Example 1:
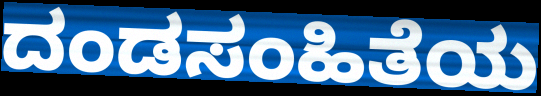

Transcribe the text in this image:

ದಂಡಸಂಹಿತೆಯ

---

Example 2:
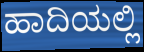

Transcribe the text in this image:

ಹಾದಿಯಲ್ಲಿ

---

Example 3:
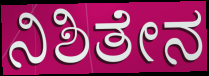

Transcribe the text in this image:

ನಿಶಿತೇನ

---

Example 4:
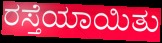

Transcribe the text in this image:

ರಸ್ತೆಯಾಯಿತು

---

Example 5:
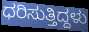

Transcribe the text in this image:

ಧರಿಸುತ್ತಿದ್ದಳು